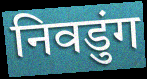
निवडुंग